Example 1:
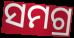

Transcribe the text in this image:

ସମଗ୍ର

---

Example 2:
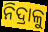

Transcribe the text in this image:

ନିଦ୍ରାଳୁ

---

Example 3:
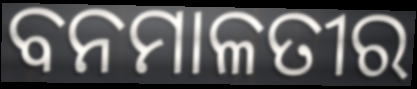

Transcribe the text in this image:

ବନମାଳତୀର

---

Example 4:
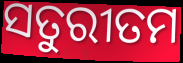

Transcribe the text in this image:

ସତୁରୀତମ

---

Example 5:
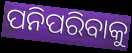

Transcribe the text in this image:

ପନିପରିବାକୁ